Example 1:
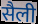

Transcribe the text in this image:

सैली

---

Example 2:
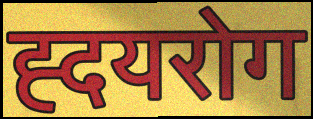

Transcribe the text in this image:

ह्दयरोग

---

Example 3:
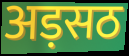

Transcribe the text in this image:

अड़सठ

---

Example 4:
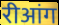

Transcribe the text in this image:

रीआंग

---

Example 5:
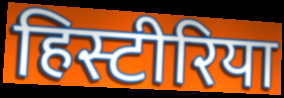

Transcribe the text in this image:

हिस्टीरिया